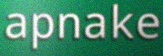
apnake